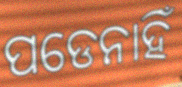
ପଡେନାହିଁ